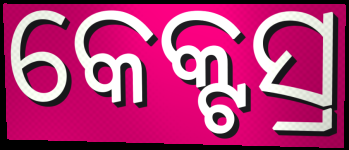
କେକ୍ଟସ୍ର